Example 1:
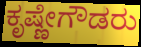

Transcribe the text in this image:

ಕೃಷ್ಣೇಗೌಡರು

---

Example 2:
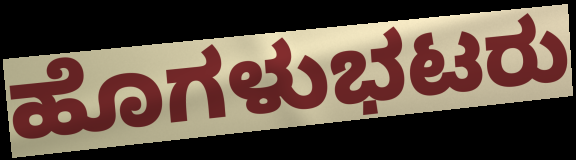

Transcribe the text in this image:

ಹೊಗಳುಭಟರು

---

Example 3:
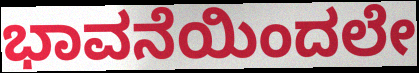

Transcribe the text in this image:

ಭಾವನೆಯಿಂದಲೇ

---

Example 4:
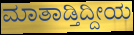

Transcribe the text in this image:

ಮಾತಾಡ್ತಿದ್ದೀಯ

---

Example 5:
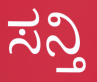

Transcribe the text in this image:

ಸನ್ತಿ